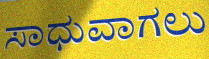
ಸಾಧುವಾಗಲು